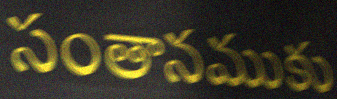
సంతానముకు